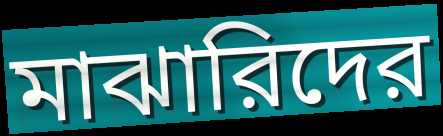
মাঝারিদের